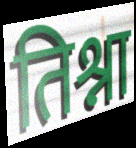
तिश्ना